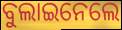
ବୁଲାଇନେଲେ